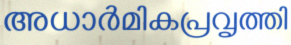
അധാർമികപ്രവൃത്തി